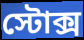
স্টোক্স